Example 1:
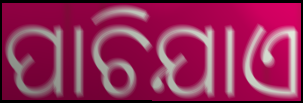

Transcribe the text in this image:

ପାଚିଯାଏ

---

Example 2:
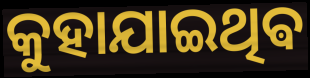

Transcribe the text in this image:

କୁହାଯାଇଥିଵ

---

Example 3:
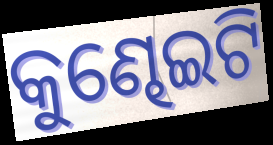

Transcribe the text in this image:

କୁଣ୍ଢେଇଟି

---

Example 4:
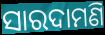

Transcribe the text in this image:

ସାରଦାମଣି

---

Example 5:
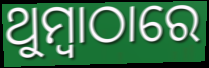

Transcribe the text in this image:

ଥୁମ୍ବାଠାରେ